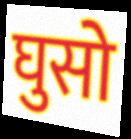
घुसो